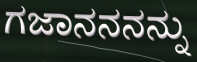
ಗಜಾನನನನ್ನು